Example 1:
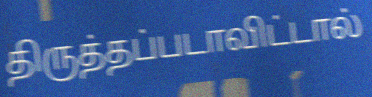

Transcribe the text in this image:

திருத்தப்படாவிட்டால்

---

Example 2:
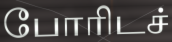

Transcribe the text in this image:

போரிடச்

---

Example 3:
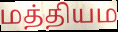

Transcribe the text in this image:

மத்தியம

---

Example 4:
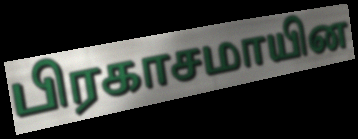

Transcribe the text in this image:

பிரகாசமாயின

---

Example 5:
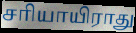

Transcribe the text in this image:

சரியாயிராது